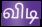
விடி